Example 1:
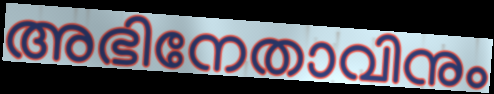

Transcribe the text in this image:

അഭിനേതാവിനും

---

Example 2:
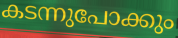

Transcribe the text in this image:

കടന്നുപോക്കും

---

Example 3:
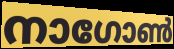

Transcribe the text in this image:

നാഗോൺ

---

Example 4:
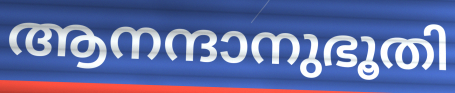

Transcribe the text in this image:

ആനന്ദാനുഭൂതി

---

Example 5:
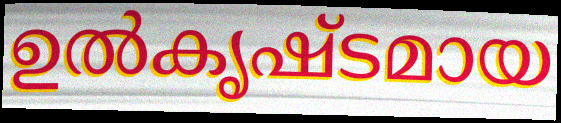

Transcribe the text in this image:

ഉൽകൃഷ്ടമായ